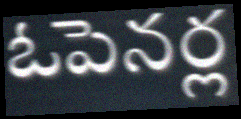
ఓపెనర్ల